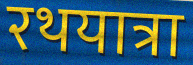
रथयात्रा